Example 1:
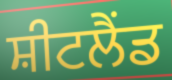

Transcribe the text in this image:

ਸ਼ੀਟਲੈਂਡ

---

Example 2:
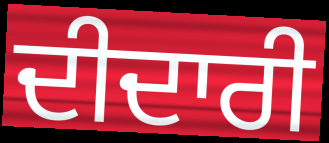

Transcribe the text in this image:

ਦੀਦਾਰੀ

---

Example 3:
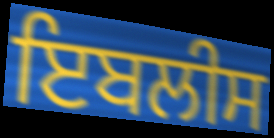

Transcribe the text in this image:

ਇਬਲੀਸ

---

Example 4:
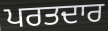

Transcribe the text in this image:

ਪਰਤਦਾਰ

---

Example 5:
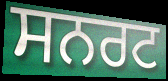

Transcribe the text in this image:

ਸਨਰਟ